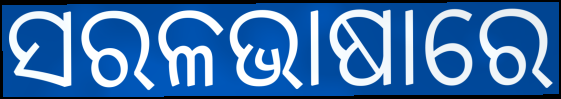
ସରଳଭାଷାରେ